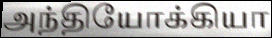
அந்தியோக்கியா